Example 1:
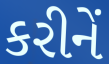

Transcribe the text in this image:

કરીનેં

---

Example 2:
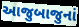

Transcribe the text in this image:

આજુબાજુનાં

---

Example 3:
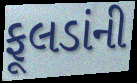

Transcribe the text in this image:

ફૂલડાંની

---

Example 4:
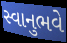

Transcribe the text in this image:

સ્વાનુભવે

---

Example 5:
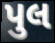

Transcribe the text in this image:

પુલ